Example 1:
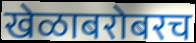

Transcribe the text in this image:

खेळाबरोबरच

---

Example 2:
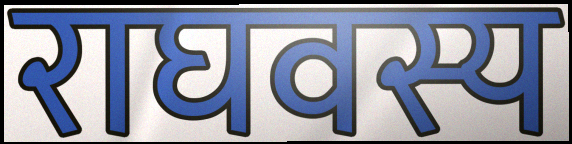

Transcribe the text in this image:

राघवस्य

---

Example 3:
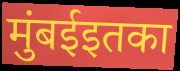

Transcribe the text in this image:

मुंबईइतका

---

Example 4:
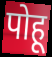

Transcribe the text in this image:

पोहू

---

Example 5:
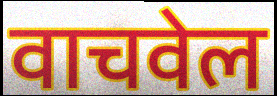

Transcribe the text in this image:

वाचवेल